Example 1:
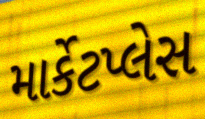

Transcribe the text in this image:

માર્કેટપ્લેસ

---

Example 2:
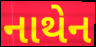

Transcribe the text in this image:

નાથેન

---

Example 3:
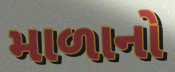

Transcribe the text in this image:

માળાનો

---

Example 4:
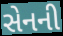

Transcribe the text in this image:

સેનની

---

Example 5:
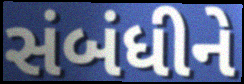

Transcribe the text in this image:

સંબંધીને